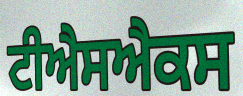
ਟੀਐਸਐਕਸ